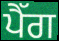
ਪੈੱਗ